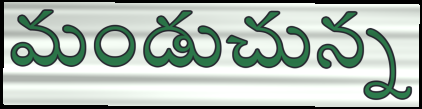
మండుచున్న